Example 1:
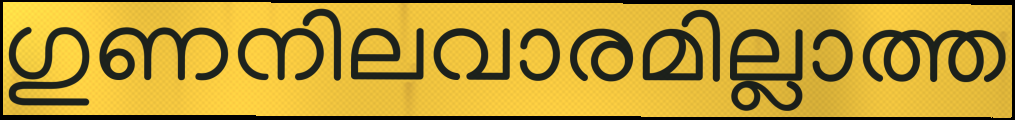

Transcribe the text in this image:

ഗുണനിലവാരമില്ലാത്ത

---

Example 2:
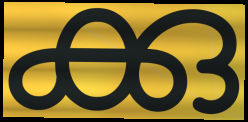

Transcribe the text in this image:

ക്കു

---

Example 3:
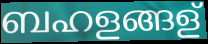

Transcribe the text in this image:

ബഹളങ്ങള്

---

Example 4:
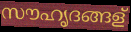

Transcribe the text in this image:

സൗഹൃദങ്ങള്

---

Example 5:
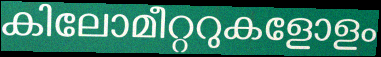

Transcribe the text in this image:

കിലോമീറ്ററുകളോളം